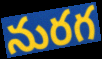
నురగ